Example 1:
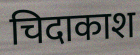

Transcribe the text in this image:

चिदाकाश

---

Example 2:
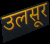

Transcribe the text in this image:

उलसूर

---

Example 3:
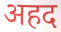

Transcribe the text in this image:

अहद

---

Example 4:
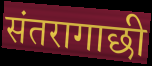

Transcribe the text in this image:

संतरागाछी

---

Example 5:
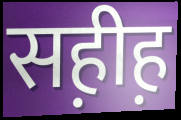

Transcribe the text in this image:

सह़ीह़